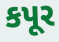
કપૂર